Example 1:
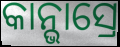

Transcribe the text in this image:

କାନ୍ଭାସ୍ରେ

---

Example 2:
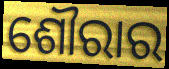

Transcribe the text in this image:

ଶୌରାର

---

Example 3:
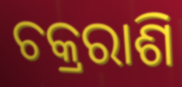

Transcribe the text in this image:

ଚକ୍ରରାଶି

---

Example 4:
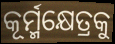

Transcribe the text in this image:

କୂର୍ମ୍ମକ୍ଷେତ୍ରକୁ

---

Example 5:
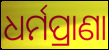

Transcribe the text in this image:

ଧର୍ମପ୍ରାଣା